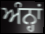
ਅੰਨ੍ਹਾਂ